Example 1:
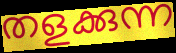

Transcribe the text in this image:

തളക്കുന്ന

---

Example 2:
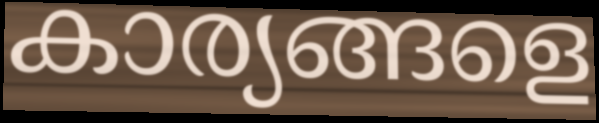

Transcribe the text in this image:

കാര്യങ്ങളെ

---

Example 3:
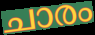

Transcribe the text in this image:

ചാരം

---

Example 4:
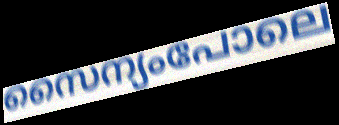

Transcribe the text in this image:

സൈന്യംപോലെ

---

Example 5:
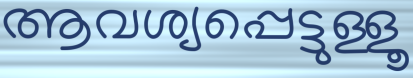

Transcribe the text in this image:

ആവശ്യപ്പെട്ടുള്ളൂ